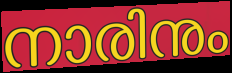
നാരിനും